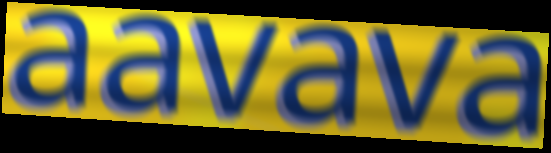
aavava